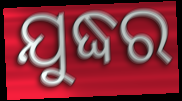
ଯୁଦ୍ଧର